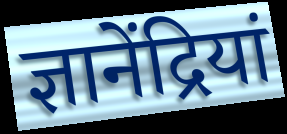
ज्ञानेंद्रियां